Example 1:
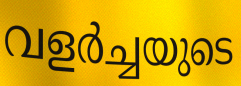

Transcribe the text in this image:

വളർച്ചയുടെ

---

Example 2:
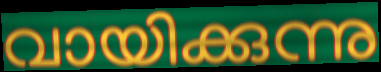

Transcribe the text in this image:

വായിക്കുന്നു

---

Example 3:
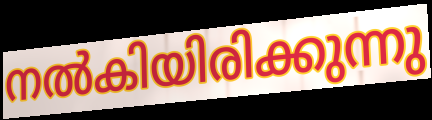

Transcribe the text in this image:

നൽകിയിരിക്കുന്നു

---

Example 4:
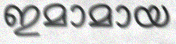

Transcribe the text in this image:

ഇമാമായ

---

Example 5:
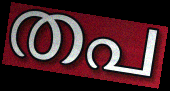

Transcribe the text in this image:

തപ